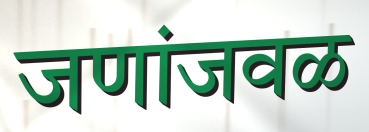
जणांजवळ